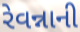
રેવન્નાની